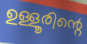
ഉള്ളൂരിന്റെ